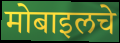
मोबाइलचे